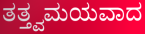
ತತ್ತ್ವಮಯವಾದ